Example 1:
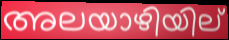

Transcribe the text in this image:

അലയാഴിയില്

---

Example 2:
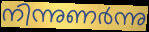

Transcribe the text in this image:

നിന്നുണർന്നു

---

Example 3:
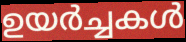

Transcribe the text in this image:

ഉയർച്ചകൾ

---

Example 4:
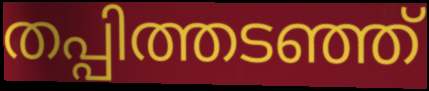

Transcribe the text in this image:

തപ്പിത്തടഞ്ഞ്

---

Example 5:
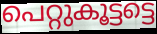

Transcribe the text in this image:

പെറ്റുകൂട്ടട്ടെ